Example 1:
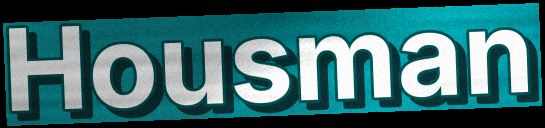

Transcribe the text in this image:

Housman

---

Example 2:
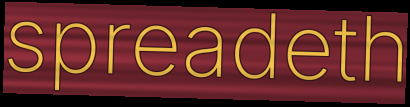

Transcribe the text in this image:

spreadeth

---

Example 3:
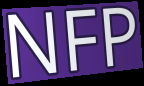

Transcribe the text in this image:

NFP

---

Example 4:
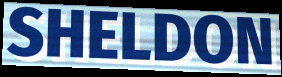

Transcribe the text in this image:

SHELDON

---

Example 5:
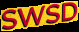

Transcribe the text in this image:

SWSD